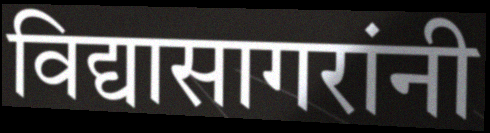
विद्यासागरांनी